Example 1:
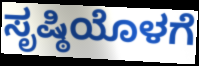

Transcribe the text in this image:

ಸೃಷ್ಠಿಯೊಳಗೆ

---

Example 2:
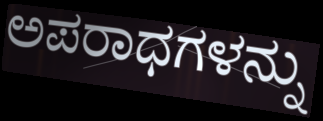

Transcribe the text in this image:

ಅಪರಾಧಗಳನ್ನು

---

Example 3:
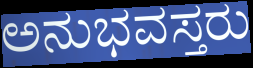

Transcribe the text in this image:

ಅನುಭವಸ್ತರು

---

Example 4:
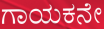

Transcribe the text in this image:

ಗಾಯಕನೇ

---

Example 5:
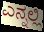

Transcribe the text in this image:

ಎನ್ನಲ್ಲಿ